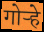
गोऱ्हे